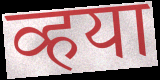
व्हया